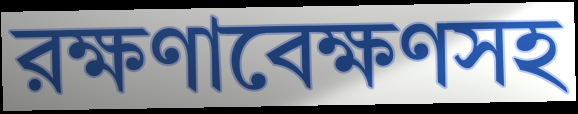
রক্ষণাবেক্ষণসহ